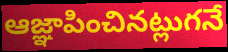
ఆజ్ఞాపించినట్లుగనే